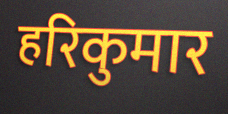
हरिकुमार